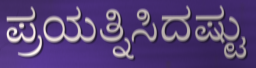
ಪ್ರಯತ್ನಿಸಿದಷ್ಟು